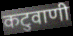
कटुवाणी